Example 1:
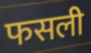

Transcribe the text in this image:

फसली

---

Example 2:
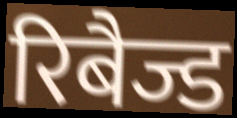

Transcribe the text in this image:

रिबैज्ड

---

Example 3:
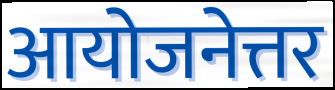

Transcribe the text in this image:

आयोजनेत्तर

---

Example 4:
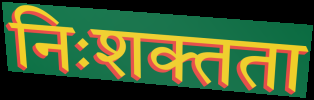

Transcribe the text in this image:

निःशक्तता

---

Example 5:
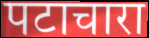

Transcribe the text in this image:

पटाचारा